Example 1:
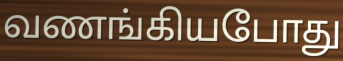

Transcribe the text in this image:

வணங்கியபோது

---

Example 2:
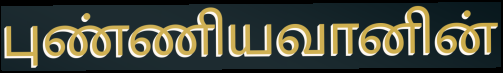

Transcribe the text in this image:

புண்ணியவானின்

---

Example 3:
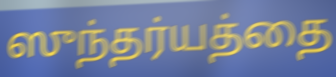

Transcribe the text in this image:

ஸுந்தர்யத்தை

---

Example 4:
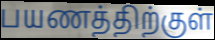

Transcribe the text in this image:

பயணத்திற்குள்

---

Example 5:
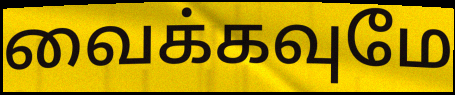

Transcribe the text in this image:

வைக்கவுமே